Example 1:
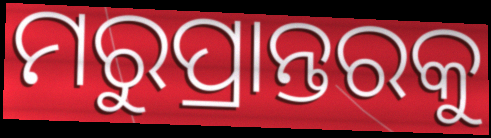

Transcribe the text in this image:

ମରୁପ୍ରାନ୍ତରକୁ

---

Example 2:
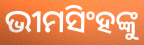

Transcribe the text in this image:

ଭୀମସିଂହଙ୍କୁ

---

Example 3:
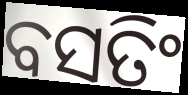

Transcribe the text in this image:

ବସତିଂ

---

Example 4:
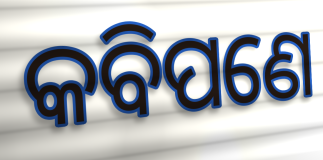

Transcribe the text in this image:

କବିପଣେ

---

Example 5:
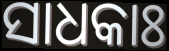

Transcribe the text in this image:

ସାଧକାଃ